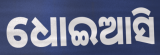
ଧୋଇଆସି